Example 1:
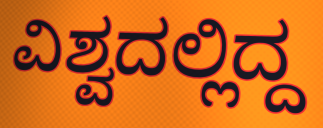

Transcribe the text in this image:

ವಿಶ್ವದಲ್ಲಿದ್ದ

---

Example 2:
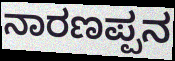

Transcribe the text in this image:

ನಾರಣಪ್ಪನ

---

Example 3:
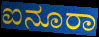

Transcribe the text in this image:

ಐನೂರಾ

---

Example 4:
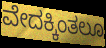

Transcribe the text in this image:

ವೇದಕ್ಕಿಂತಲೂ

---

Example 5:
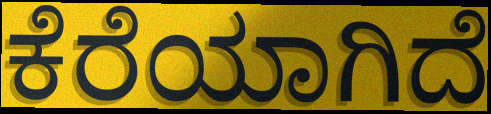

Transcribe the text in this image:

ಕೆರೆಯಾಗಿದೆ